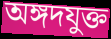
অঙ্গদযুক্ত